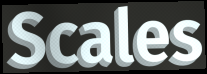
Scales